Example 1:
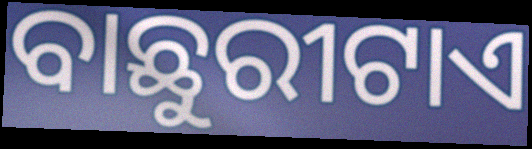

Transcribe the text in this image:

ବାଛୁରୀଟାଏ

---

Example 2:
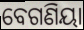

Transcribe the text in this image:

ବେଗଣିୟା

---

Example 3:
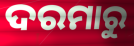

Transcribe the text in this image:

ଦରମାରୁ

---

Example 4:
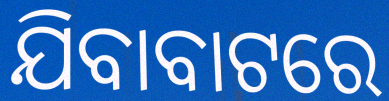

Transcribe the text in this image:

ଯିବାବାଟରେ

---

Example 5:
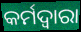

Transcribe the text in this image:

କର୍ମଦ୍ୱାରା